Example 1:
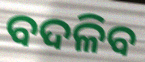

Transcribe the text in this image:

ବଦଳିବ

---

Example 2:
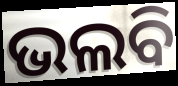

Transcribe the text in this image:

ଭଲବି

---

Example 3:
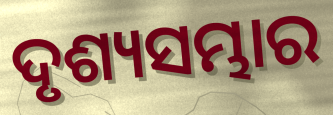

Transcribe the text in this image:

ଦୃଶ୍ୟସମ୍ଭାର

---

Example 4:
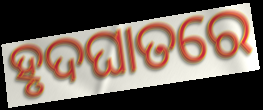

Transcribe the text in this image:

ହୃଦଘାତରେ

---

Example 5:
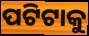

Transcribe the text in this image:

ପଟିଟାକୁ